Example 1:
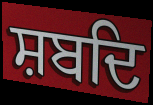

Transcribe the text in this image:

ਸ਼ਬਦਿ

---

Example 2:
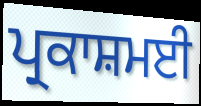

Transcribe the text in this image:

ਪ੍ਰਕਾਸ਼ਮਈ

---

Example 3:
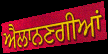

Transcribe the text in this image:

ਐਲਾਨਣਗੀਆਂ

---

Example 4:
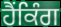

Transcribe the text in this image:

ਹੈਂਕਿੰਗ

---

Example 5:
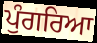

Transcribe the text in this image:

ਪੁੰਗਰਿਆ